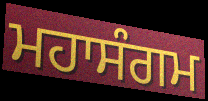
ਮਹਾਸੰਗਮ